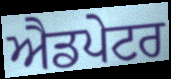
ਐਡਪੇਟਰ